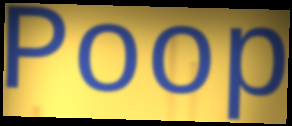
Poop